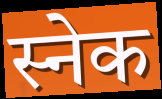
स्‍नेक